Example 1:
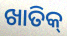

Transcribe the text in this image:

ଖାତିକ୍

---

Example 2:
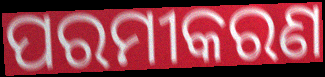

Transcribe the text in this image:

ପରମୀକରଣ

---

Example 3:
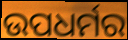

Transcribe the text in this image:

ଉପଧର୍ମର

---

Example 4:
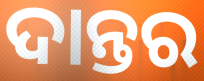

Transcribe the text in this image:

ଦାନ୍ତର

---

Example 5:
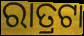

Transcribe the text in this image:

ରାତ୍ରଟା